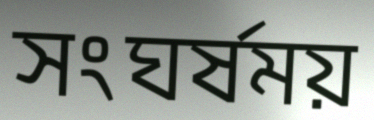
সংঘর্ষময়